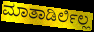
ಮಾತಾಡಿರ್ಲಿಲ್ಲ